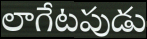
లాగేటపుడు